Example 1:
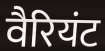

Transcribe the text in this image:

वैरियंट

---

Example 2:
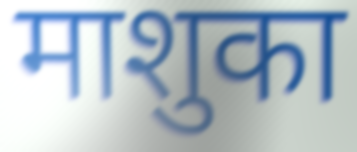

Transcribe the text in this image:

माशुका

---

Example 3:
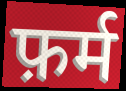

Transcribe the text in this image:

फ़र्म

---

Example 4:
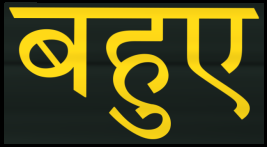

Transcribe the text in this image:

बहुए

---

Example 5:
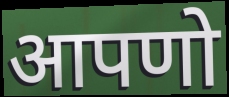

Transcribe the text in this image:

आपणो